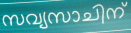
സവ്യസാചിന്